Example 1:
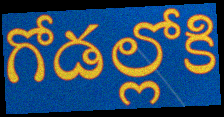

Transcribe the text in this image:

గోడల్లోకి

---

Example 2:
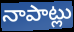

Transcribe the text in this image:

నాపాట్లు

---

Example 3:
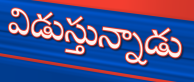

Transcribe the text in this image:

విడుస్తున్నాడు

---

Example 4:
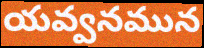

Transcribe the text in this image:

యవ్వనమున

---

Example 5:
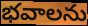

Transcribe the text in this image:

భవాలను